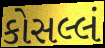
કોસલ્લં